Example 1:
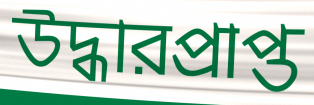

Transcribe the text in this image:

উদ্ধারপ্রাপ্ত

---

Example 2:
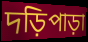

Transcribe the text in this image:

দড়িপাড়া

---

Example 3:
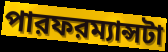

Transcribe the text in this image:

পারফরম্যান্সটা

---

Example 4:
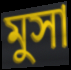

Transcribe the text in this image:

মুসা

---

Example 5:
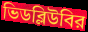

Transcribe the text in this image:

ভিডব্লিউবির